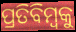
ପ୍ରତିବିମ୍ୱକୁ